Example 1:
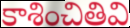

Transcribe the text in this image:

కాశించితివి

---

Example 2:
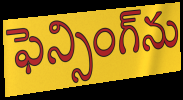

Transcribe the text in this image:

ఫెన్సింగ్‌ను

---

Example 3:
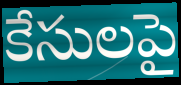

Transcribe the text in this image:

కేసులపై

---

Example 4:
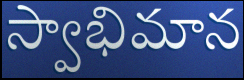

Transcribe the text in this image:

స్వాభిమాన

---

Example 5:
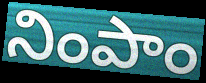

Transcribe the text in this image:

నింపాం